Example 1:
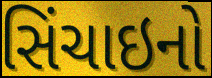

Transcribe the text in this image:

સિંચાઇનો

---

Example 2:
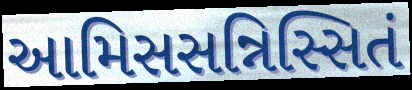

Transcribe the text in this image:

આમિસસન્નિસ્સિતં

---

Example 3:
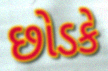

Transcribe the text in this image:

છોડકે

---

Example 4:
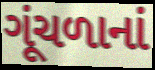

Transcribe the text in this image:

ગૂંચળાનાં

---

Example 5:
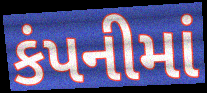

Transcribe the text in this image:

કંપનીમાં